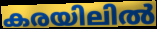
കരയിലിൽ